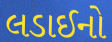
લડાઈનો